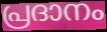
പ്രദാനം